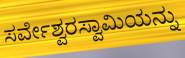
ಸರ್ವೇಶ್ವರಸ್ವಾಮಿಯನ್ನು